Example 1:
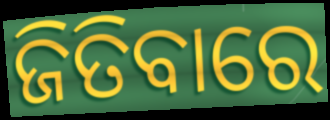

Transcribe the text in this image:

ଜିତିବାରେ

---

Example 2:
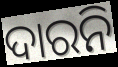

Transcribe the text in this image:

ଦାରନି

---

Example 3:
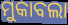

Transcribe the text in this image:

ମୁକାବଲା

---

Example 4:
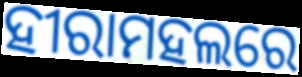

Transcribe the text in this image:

ହୀରାମହଲରେ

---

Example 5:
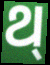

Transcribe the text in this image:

ଥ୍